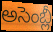
అసెంబ్లీ